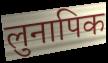
लुनापिक